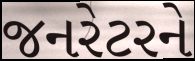
જનરેટરને